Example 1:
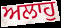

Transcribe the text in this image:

ਅਲਾਹੁ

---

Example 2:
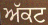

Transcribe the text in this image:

ਅੱਕਟ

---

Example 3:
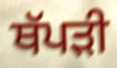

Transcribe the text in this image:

ਥੱਪੜੀ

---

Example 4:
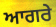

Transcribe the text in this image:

ਆਗਰੇ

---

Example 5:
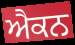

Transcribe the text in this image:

ਐਕਨ